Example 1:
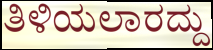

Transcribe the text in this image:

ತಿಳಿಯಲಾರದ್ದು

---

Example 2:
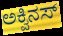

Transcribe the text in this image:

ಅಕ್ವಿನಸ್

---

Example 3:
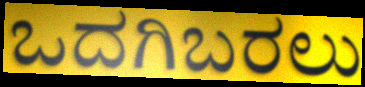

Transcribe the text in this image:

ಒದಗಿಬರಲು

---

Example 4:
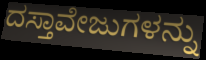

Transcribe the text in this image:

ದಸ್ತಾವೇಜುಗಳನ್ನು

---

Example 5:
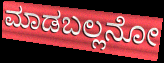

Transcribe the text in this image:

ಮಾಡಬಲ್ಲನೋ